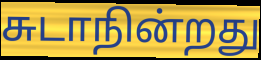
சுடாநின்றது